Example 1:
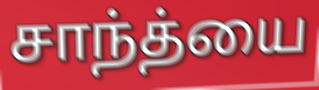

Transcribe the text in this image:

சாந்த்யை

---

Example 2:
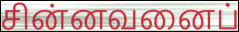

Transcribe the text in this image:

சின்னவனைப்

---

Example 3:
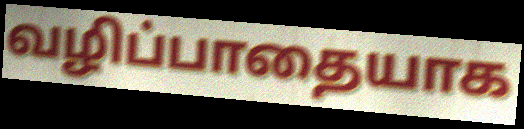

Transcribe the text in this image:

வழிப்பாதையாக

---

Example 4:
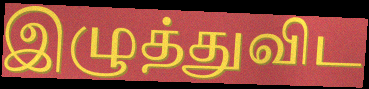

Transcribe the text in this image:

இழுத்துவிட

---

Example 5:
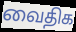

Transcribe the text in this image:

வைதிக